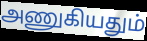
அணுகியதும்